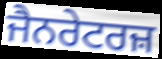
ਜੈਨਰੇਟਰਜ਼